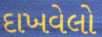
દાખવેલો